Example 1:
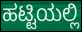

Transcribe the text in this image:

ಹಟ್ಟಿಯಲ್ಲಿ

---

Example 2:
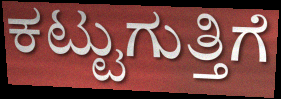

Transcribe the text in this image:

ಕಟ್ಟುಗುತ್ತಿಗೆ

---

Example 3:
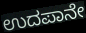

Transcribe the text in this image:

ಉದಪಾನೇ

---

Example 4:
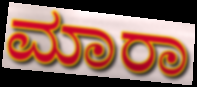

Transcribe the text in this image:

ಮಾರಾ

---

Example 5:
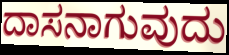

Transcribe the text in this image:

ದಾಸನಾಗುವುದು